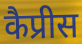
कैप्रीस